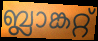
ബ്ലാങ്കറ്റ്